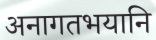
अनागतभयानि